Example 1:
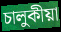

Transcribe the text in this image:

চালুকীয়া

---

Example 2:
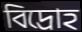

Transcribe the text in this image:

বিদ্ৰোহ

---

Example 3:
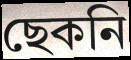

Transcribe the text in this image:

ছেকনি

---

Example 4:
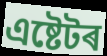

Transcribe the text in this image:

এষ্টেটৰ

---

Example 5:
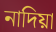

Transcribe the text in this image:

নাদিয়া